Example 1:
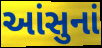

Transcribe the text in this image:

આંસુનાં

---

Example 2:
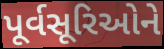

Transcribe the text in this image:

પૂર્વસૂરિઓને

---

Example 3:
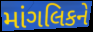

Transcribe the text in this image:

માંગલિકને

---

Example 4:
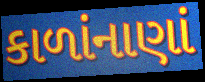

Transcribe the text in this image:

કાળાંનાણાં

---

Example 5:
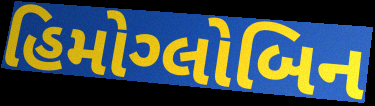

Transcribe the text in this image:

હિમોગ્લોબિન